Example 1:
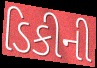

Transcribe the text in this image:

ડિકીની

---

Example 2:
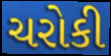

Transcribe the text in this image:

ચરોકી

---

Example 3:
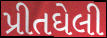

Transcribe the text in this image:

પ્રીતઘેલી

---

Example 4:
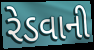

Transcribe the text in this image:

રેડવાની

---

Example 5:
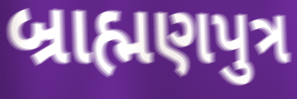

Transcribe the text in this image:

બ્રાહ્મણપુત્ર